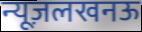
न्यूज़लखनऊ